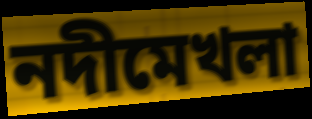
নদীমেখলা